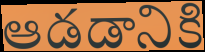
ఆడడానికి